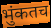
भुंकतच